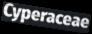
Cyperaceae